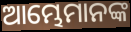
ଆମ୍ଭେମାନଙ୍କ